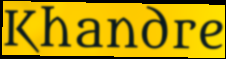
Khandre